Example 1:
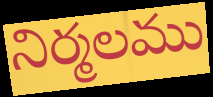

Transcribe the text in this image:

నిర్మలము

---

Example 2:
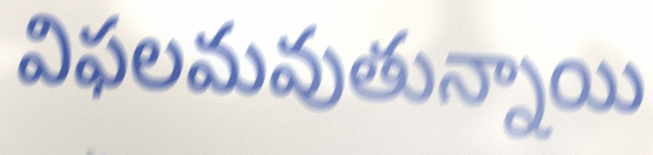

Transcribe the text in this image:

విఫలమవుతున్నాయి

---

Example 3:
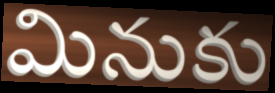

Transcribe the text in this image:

మినుకు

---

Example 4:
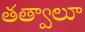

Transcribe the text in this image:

తత్వాలూ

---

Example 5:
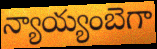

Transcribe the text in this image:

న్యాయ్యంబెగా